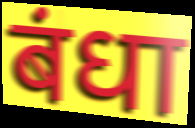
बंधा